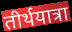
तीर्थयात्रा